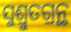
ସୁଶ୍ରୁତଗ୍ରନ୍ଥ